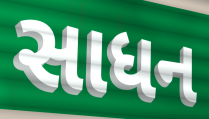
સાધન